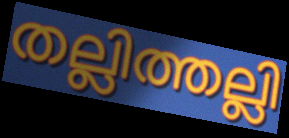
തല്ലിത്തല്ലി